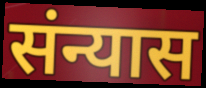
संन्यास